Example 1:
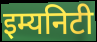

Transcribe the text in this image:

इम्यनिटी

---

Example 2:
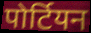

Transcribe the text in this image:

पोर्टियन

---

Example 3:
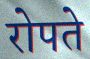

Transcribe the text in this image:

रोपते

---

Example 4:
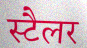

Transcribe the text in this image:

स्टैलर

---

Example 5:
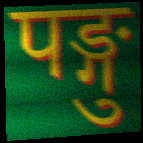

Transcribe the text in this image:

पङ्गु